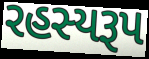
રહસ્યરૂપ